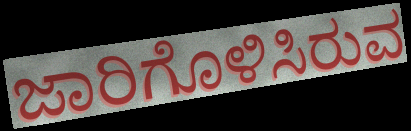
ಜಾರಿಗೊಳಿಸಿರುವ